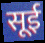
सूई